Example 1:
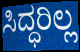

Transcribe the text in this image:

ಸಿದ್ಧರಿಲ್ಲ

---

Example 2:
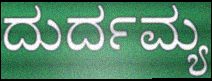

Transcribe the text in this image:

ದುರ್ದಮ್ಯ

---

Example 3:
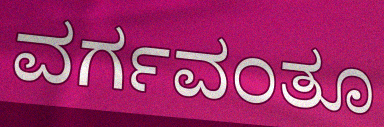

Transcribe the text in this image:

ವರ್ಗವಂತೂ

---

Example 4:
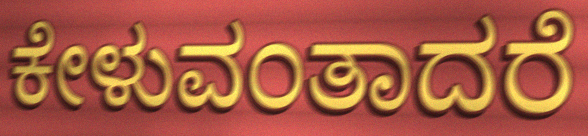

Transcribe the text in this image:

ಕೇಳುವಂತಾದರೆ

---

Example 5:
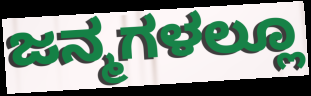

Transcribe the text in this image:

ಜನ್ಮಗಳಲ್ಲೂ